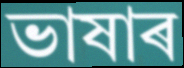
ভাষাৰ